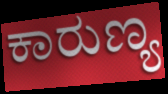
ಕಾರುಣ್ಯ